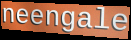
neengale